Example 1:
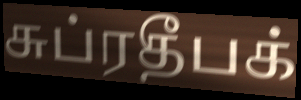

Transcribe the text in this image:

சுப்ரதீபக்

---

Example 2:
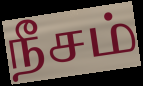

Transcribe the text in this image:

நீசம்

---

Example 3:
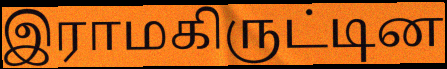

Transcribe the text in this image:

இராமகிருட்டின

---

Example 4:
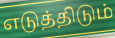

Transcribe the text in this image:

எடுத்திடும்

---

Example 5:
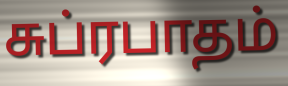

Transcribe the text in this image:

சுப்ரபாதம்